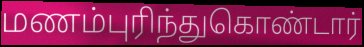
மணம்புரிந்துகொண்டார்